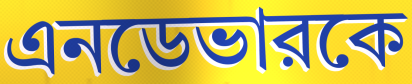
এনডেভারকে